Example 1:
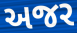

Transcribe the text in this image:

અજર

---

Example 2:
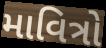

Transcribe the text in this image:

માવિત્રો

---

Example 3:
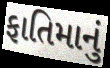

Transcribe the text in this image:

ફાતિમાનું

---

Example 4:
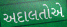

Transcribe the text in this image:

અદાલતોએ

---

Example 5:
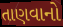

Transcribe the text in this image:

તાણવાનો